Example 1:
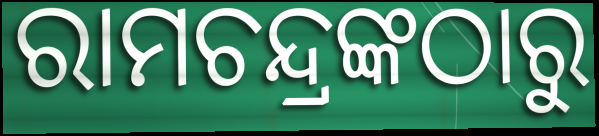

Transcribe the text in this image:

ରାମଚନ୍ଦ୍ରଙ୍କଠାରୁ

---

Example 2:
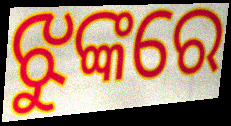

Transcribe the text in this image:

ଝୁଙ୍କରେ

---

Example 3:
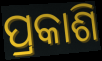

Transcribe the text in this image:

ପ୍ରକାଶି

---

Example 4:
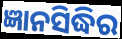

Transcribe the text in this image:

ଜ୍ଞାନସିଦ୍ଧିର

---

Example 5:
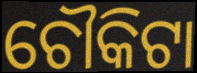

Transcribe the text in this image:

ଚୌକିଟା